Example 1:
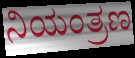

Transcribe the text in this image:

ನಿಯಂತ್ರಣ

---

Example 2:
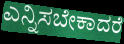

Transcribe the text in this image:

ಎನ್ನಿಸಬೇಕಾದರೆ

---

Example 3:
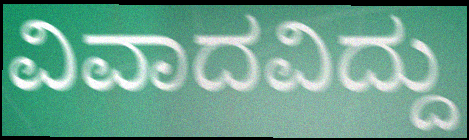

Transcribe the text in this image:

ವಿವಾದವಿದ್ದು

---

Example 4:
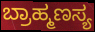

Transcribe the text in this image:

ಬ್ರಾಹ್ಮಣಸ್ಯ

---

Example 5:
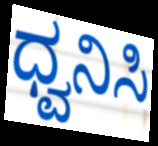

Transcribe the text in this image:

ಧ್ವನಿಸಿ